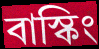
বাস্কিং